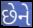
છેને